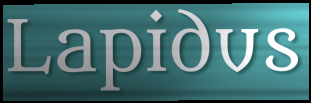
Lapidus